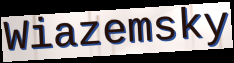
Wiazemsky